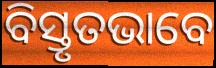
ବିସ୍ତୃତଭାବେ